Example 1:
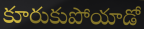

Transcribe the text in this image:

కూరుకుపోయాడో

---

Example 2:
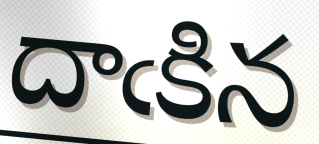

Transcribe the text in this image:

దాఁకిన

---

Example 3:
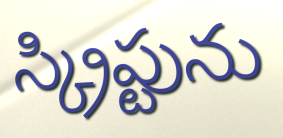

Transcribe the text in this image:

స్క్రిప్టును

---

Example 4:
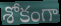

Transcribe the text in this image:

శోకంగా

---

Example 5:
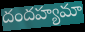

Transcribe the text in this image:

దందహ్యమా